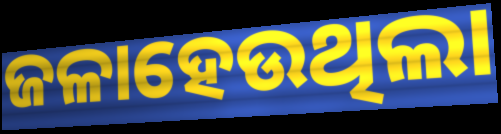
ଜଳାହେଉଥିଲା